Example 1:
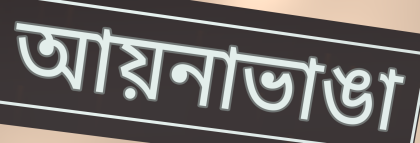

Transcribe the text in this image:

আয়নাভাঙা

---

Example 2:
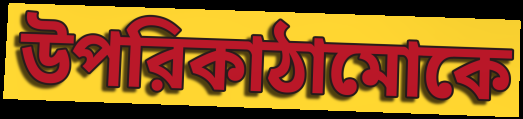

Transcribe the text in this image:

উপরিকাঠামোকে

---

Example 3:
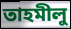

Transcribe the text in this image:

তাহমীলু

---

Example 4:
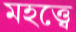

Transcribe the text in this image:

মহত্ত্বে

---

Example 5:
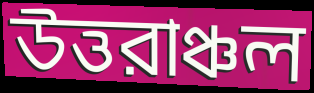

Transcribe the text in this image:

উত্তরাঞ্চল